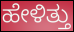
ಹೇಳಿತ್ತು